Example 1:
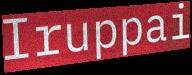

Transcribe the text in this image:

Iruppai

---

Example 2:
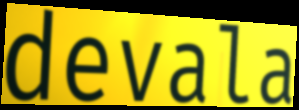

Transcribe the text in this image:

devala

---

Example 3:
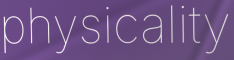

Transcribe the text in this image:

physicality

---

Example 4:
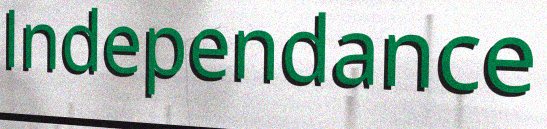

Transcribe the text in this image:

Independance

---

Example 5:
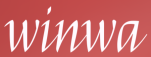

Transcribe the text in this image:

winwa